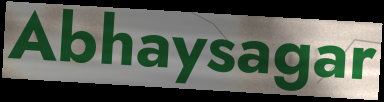
Abhaysagar